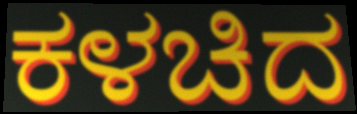
ಕಳಚಿದ